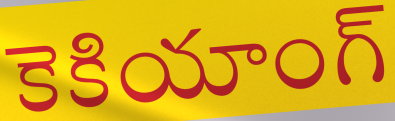
కెకియాంగ్